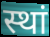
स्थां